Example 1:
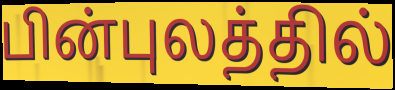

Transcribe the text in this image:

பின்புலத்தில்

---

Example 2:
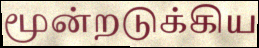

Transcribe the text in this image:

மூன்றடுக்கிய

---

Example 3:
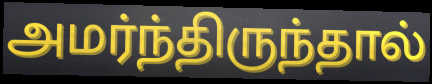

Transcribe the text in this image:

அமர்ந்திருந்தால்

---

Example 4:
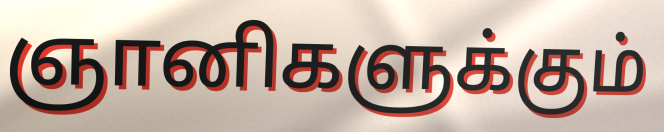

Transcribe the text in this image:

ஞானிகளுக்கும்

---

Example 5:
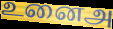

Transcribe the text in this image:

உனைஅ